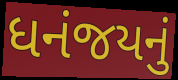
ધનંજયનું